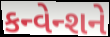
કન્વેન્શને